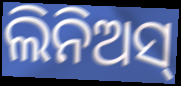
ଲିନିଅସ୍